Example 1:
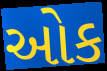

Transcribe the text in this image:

ઓક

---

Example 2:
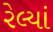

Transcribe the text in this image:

રેલ્યાં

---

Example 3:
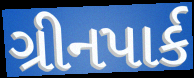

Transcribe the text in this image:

ગ્રીનપાર્ક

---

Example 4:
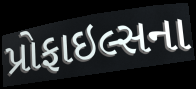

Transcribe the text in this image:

પ્રોફાઇલ્સના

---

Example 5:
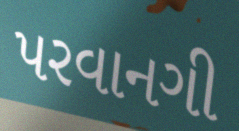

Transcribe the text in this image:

પરવાનગી